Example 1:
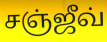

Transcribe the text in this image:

சஞ்ஜீவ்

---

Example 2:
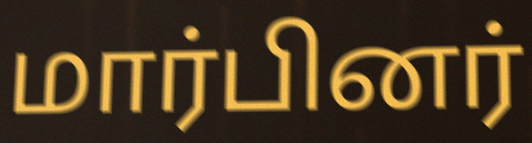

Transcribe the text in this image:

மார்பினர்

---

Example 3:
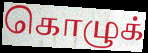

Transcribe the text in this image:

கொழுக்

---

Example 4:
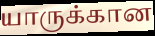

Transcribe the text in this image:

யாருக்கான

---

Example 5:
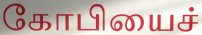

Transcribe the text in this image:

கோபியைச்